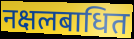
नक्षलबाधित